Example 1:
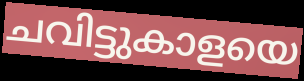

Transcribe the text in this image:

ചവിട്ടുകാളയെ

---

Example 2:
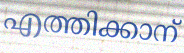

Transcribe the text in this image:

എത്തിക്കാന്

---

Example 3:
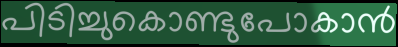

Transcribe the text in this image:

പിടിച്ചുകൊണ്ടുപോകാൻ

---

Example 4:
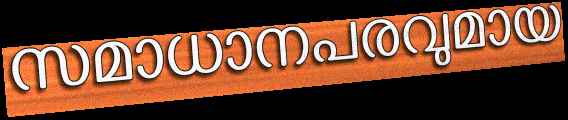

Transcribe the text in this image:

സമാധാനപരവുമായ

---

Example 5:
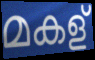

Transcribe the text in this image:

മകള്